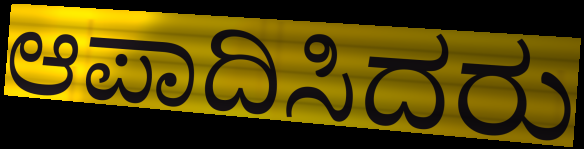
ಆಪಾದಿಸಿದರು